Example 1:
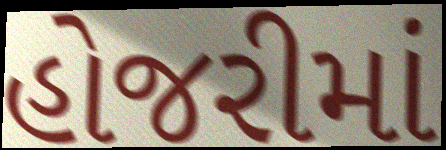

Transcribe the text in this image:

હોજરીમાં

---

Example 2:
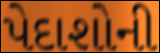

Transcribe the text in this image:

પેદાશોની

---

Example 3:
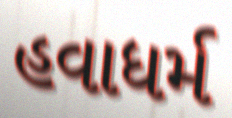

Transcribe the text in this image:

હવાધર્મ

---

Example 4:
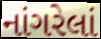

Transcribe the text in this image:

નાંગરેલાં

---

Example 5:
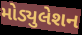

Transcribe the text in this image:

મોડ્યુલેશન